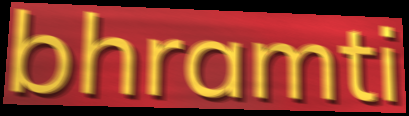
bhramti